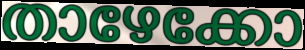
താഴേക്കോ